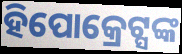
ହିପୋକ୍ରେଟ୍ସଙ୍କ